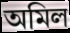
অমিল